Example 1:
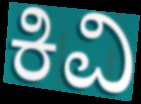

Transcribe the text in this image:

ಕಿವಿ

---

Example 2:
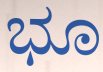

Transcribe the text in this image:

ಭೂ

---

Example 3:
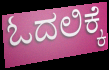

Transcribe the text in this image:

ಓದಲಿಕ್ಕೆ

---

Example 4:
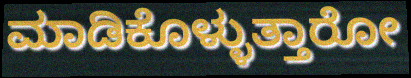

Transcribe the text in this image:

ಮಾಡಿಕೊಳ್ಳುತ್ತಾರೋ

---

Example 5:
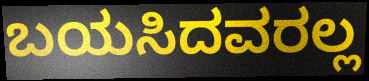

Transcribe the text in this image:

ಬಯಸಿದವರಲ್ಲ